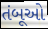
તંબૂઓ